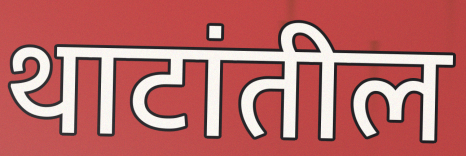
थाटांतील